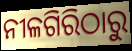
ନୀଳଗିରିଠାରୁ